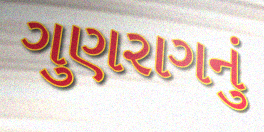
ગુણરાગનું